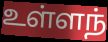
உள்ளந்